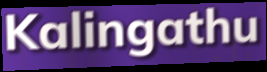
Kalingathu